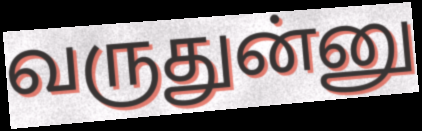
வருதுன்னு